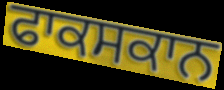
ਫਾਕਸਕਾਨ